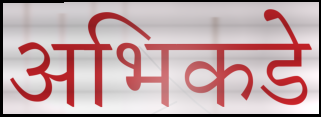
अभिकडे